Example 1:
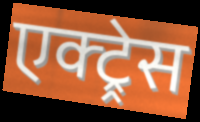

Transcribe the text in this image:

एक्ट्र्रेस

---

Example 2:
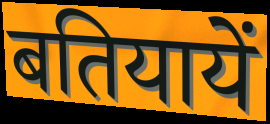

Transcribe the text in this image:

बतियायें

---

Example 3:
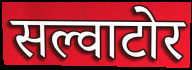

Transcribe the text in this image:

सल्वाटोर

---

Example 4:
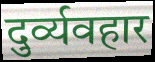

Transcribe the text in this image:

दुर्व्‍यवहार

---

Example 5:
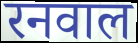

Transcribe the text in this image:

रनवाल